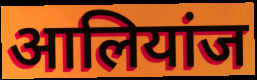
आलियांज